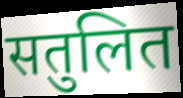
सतुलित